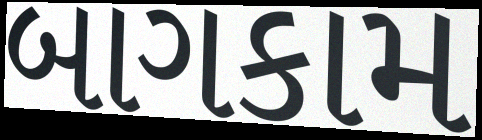
બાગકામ